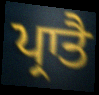
ਪ੍ਰਾਤੈ